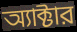
অ্যাক্টার